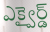
ఎక్వైర్డ్